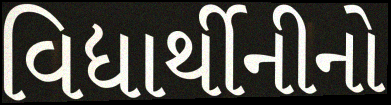
વિદ્યાર્થીનીનો